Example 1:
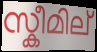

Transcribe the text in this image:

സ്കീമില്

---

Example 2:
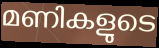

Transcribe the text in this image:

മണികളുടെ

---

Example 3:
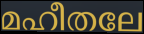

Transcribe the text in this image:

മഹീതലേ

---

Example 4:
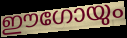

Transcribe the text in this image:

ഈഗോയും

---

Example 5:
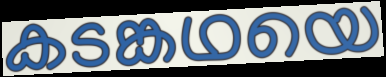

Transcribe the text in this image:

കടങ്കഥയെ